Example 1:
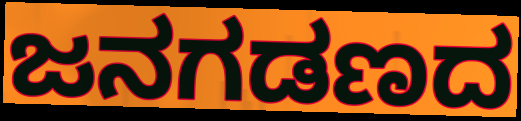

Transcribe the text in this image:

ಜನಗಡಣದ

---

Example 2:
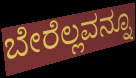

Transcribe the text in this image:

ಬೇರೆಲ್ಲವನ್ನೂ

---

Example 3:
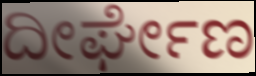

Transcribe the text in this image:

ದೀರ್ಘೇಣ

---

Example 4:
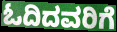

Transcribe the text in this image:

ಓದಿದವರಿಗೆ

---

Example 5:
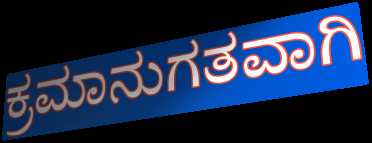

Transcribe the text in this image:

ಕ್ರಮಾನುಗತವಾಗಿ